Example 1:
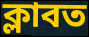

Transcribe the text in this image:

ক্লাবত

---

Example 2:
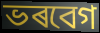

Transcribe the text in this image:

ভৰবেগ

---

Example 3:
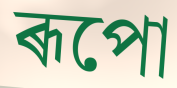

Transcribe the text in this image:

ৰূপো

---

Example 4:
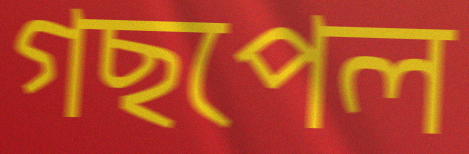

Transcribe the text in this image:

গছপেল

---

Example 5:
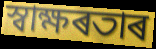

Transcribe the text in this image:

স্বাক্ষৰতাৰ